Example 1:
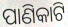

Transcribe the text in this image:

ପାଣିକାଟି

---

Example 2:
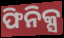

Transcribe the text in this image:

ଫିନିକ୍ସ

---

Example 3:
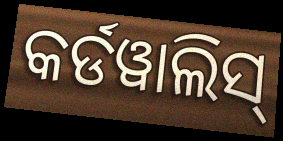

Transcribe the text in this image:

କର୍ଡୱାଲିସ୍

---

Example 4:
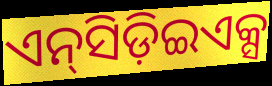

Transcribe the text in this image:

ଏନ୍‍ସିଡ଼ିଇଏକ୍ସ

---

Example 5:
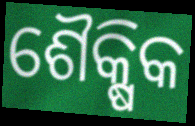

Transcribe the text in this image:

ଶୈକ୍ଷିକ